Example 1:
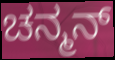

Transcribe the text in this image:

ಚನ್ಮನ್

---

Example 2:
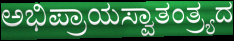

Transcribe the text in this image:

ಅಭಿಪ್ರಾಯಸ್ವಾತಂತ್ರ್ಯದ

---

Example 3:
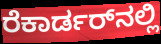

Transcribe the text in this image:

ರೆಕಾರ್ಡರ್‌ನಲ್ಲಿ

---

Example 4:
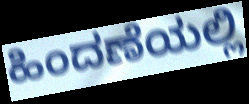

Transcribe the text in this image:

ಹಿಂದಣೆಯಲ್ಲಿ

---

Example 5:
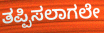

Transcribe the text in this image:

ತಪ್ಪಿಸಲಾಗಲೇ